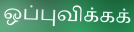
ஒப்புவிக்கக்